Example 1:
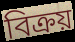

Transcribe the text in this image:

বিক্ৰয়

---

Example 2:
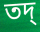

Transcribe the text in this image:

তদ্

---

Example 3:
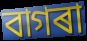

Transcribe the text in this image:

বাগৰা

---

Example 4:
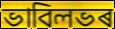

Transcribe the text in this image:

ভাবিলভৰ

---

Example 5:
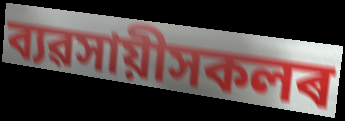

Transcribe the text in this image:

ব্যৱসায়ীসকলৰ